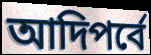
আদিপর্বে